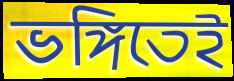
ভঙ্গিতেই